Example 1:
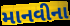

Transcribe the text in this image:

માનવીના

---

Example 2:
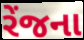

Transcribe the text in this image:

રેંજના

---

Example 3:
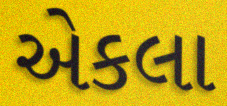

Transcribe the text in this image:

એકલા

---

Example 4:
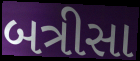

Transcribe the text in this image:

બત્રીસા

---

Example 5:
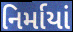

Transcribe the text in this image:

નિર્માયાં